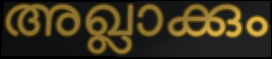
അഖ്ലാക്കും